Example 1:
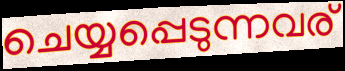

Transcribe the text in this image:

ചെയ്യപ്പെടുന്നവര്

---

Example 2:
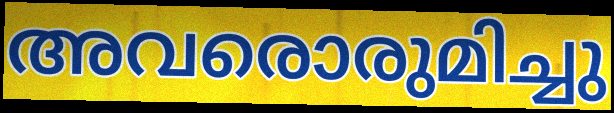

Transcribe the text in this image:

അവരൊരുമിച്ചു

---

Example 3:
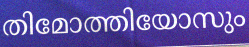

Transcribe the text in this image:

തിമോത്തിയോസും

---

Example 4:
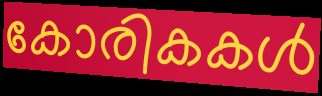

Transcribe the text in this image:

കോരികകൾ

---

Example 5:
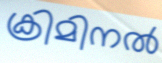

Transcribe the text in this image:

ക്രിമിനൽ